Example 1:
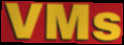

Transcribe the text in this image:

VMs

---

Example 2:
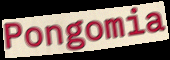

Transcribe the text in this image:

Pongomia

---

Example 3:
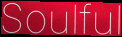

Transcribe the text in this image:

Soulful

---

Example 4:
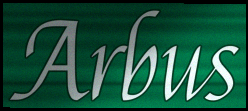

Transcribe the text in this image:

Arbus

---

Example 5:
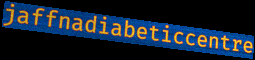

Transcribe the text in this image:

jaffnadiabeticcentre